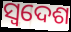
ସ୍ୱଦେଶ